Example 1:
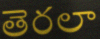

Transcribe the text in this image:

తెరలా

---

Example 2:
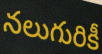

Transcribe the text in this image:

నలుగురికీ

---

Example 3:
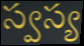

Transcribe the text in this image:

స్వస్య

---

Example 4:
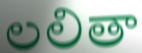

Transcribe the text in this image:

లలితా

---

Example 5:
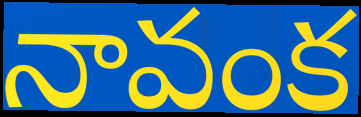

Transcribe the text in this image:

నావంక